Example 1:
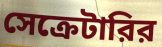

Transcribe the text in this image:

সেক্রেটারির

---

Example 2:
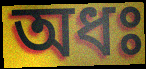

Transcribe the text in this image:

অধঃ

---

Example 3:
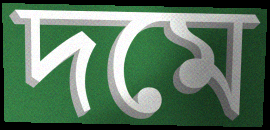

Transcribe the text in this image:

দমে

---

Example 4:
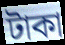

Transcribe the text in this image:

টাকা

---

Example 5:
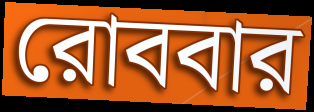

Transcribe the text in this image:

রোববার